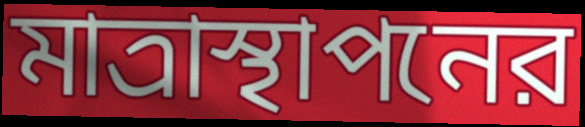
মাত্রাস্থাপনের